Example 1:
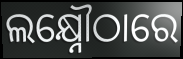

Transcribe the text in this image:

ଲକ୍ଷ୍ନୌଠାରେ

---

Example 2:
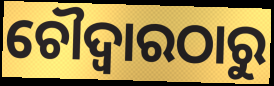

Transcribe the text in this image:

ଚୌଦ୍ୱାରଠାରୁ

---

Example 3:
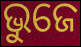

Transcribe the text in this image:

ଭୁଜେ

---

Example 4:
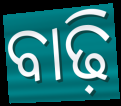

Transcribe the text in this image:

ବାଢ଼ି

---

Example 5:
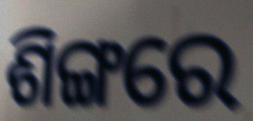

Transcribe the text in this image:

ଶିଙ୍ଗରେ